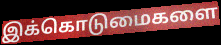
இக்கொடுமைகளை